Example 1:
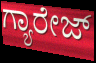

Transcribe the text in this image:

ಗ್ಯಾರೇಜ್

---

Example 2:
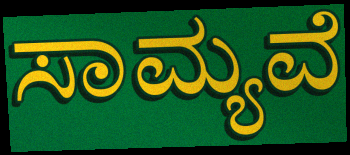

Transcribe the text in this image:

ಸಾಮ್ಯವೆ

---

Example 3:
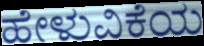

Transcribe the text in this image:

ಹೇಳುವಿಕೆಯ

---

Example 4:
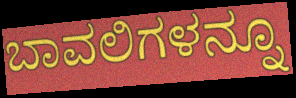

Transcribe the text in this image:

ಬಾವಲಿಗಳನ್ನೂ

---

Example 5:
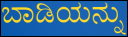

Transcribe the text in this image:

ಬಾಡಿಯನ್ನು